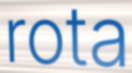
rota